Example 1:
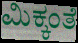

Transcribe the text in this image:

ಮಿಕ್ಕಂತೆ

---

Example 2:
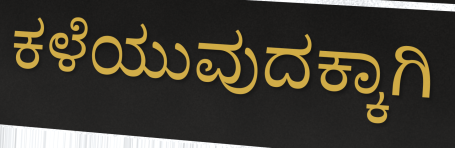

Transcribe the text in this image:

ಕಳೆಯುವುದಕ್ಕಾಗಿ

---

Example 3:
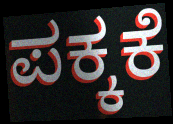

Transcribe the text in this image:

ಪಕ್ಕಕೆ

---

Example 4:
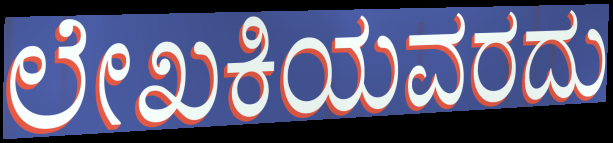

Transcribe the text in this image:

ಲೇಖಕಿಯವರದು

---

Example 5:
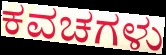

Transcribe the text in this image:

ಕವಚಗಳು